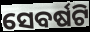
ସେବର୍ଷଟି